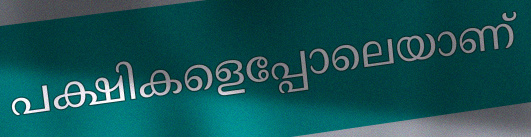
പക്ഷികളെപ്പോലെയാണ്